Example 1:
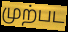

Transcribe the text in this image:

முற்பட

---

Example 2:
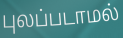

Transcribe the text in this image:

புலப்படாமல்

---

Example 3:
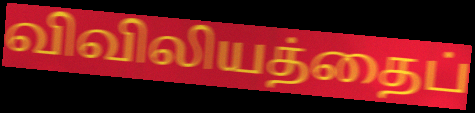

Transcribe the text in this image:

விவிலியத்தைப்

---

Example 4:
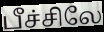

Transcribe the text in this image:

பீச்சிலே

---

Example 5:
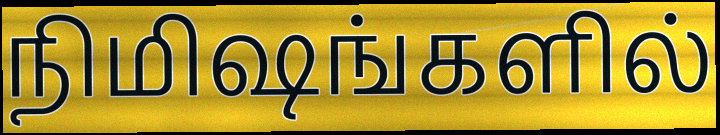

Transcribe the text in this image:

நிமிஷங்களில்